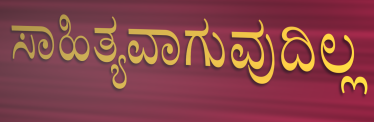
ಸಾಹಿತ್ಯವಾಗುವುದಿಲ್ಲ